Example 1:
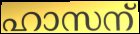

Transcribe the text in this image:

ഹാസന്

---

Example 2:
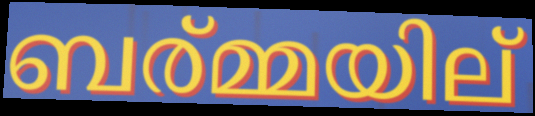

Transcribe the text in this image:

ബര്മ്മയില്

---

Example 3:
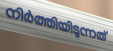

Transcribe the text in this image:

നിർത്തിയിടുന്നത്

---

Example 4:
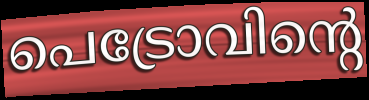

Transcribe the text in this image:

പെട്രോവിന്റെ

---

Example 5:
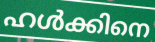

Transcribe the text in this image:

ഹൾക്കിനെ